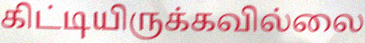
கிட்டியிருக்கவில்லை